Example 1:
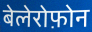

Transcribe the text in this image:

बेलेरोफ़ोन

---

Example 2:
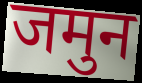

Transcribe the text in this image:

जमुन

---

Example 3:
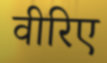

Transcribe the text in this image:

वीरिए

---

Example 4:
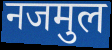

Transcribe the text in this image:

नजमुल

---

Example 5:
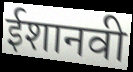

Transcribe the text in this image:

ईशानवी